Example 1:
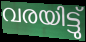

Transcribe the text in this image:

വരയിട്ടു്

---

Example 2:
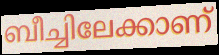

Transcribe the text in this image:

ബീച്ചിലേക്കാണ്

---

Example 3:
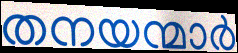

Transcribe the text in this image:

തനയന്മാർ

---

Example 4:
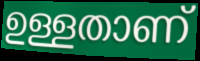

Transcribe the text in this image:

ഉള്ളതാണ്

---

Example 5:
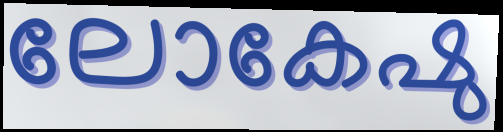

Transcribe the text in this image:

ലോകേഷു